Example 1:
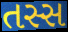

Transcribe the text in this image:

તસ્સ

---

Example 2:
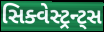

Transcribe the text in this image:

સિક્વેસ્ટ્રન્ટ્સ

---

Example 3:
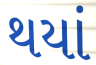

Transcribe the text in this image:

થયાં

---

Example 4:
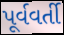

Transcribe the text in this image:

પૂર્વવર્તી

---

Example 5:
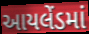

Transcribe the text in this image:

આયલેંડમાં